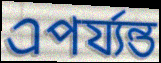
এপর্য্যন্ত